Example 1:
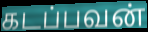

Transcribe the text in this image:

கடப்பவன்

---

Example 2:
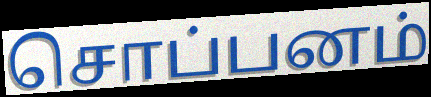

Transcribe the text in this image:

சொப்பனம்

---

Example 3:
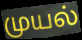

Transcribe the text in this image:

முயல்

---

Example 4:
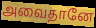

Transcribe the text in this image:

அவைதானே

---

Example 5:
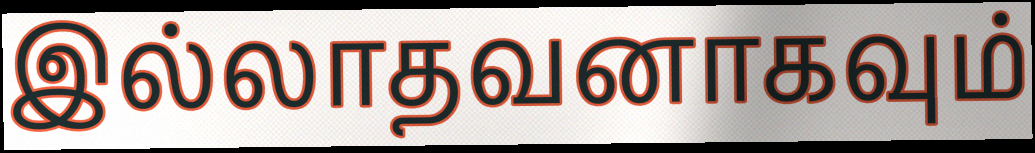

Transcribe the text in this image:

இல்லாதவனாகவும்